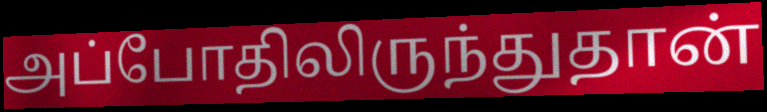
அப்போதிலிருந்துதான்